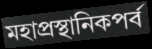
মহাপ্রস্থানিকপর্ব